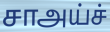
சாஅய்ச்